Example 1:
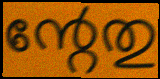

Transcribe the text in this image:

ന്റേതു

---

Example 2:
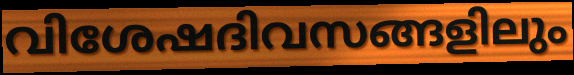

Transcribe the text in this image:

വിശേഷദിവസങ്ങളിലും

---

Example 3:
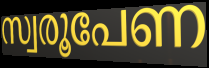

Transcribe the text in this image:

സ്വരൂപേണ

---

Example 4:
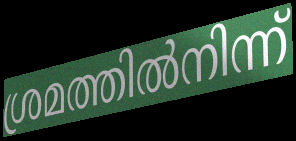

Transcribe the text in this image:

ശ്രമത്തിൽനിന്ന്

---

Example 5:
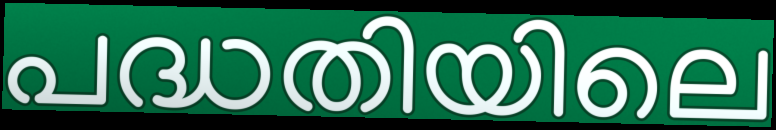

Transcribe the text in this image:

പദ്ധതിയിലെ